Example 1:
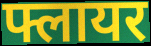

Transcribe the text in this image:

फ्लायर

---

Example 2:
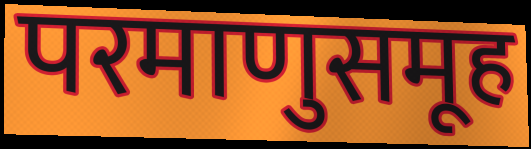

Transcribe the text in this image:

परमाणुसमूह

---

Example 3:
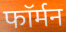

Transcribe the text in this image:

फॉर्मन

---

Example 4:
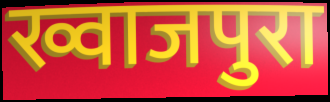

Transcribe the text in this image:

ख्वाजपुरा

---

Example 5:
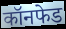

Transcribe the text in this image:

कॉनफेड